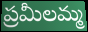
ప్రమీలమ్మ